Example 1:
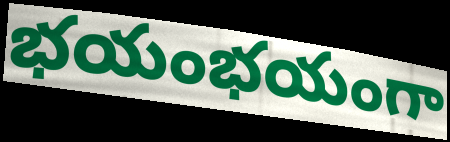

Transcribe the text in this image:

భయంభయంగా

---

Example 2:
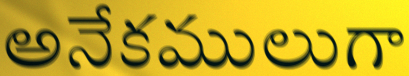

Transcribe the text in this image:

అనేకములుగా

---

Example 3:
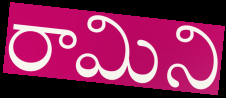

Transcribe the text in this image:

రామిని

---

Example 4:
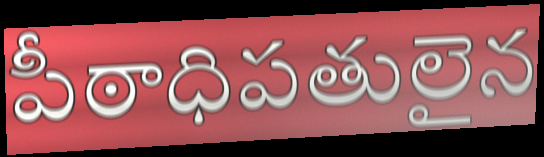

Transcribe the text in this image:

పీఠాధిపతులైన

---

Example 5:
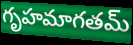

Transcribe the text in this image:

గృహమాగతమ్